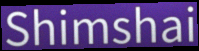
Shimshai